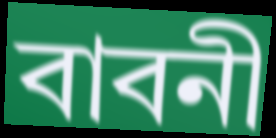
বাবনী